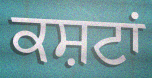
ਕਸ਼ਟਾਂ